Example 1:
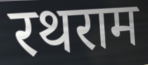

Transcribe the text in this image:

रथराम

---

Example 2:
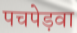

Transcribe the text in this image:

पचपेड़वा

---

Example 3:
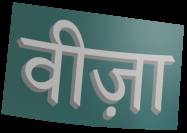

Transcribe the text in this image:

वीज़ा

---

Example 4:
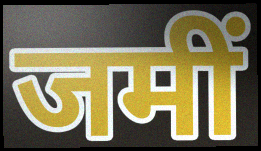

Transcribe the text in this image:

जमीं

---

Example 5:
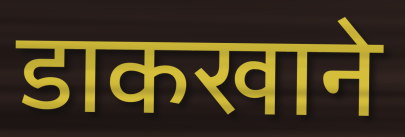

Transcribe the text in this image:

डाकखाने